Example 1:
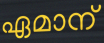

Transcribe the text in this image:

ഏമാന്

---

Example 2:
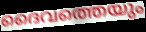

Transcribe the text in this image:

ദൈവത്തെയും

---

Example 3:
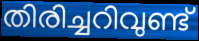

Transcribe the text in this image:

തിരിച്ചറിവുണ്ട്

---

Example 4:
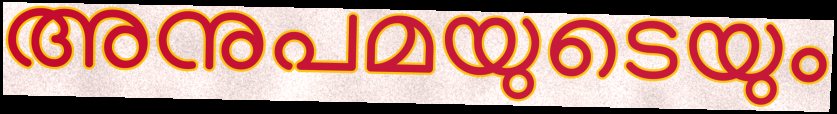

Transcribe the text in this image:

അനുപമയുടെയും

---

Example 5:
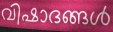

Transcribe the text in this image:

വിഷാദങ്ങൾ